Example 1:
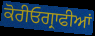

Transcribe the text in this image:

ਕੋਰੀਓਗ੍ਰਾਫੀਆਂ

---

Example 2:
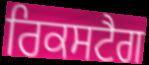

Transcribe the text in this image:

ਰਿਕਸਟੈਗ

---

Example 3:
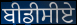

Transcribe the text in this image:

ਬੀਡੀਸੀਏ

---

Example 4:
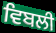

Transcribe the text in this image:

ਵਿਬਲੀ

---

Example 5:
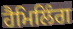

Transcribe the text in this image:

ਹੈਮਿਲਿੰਗ